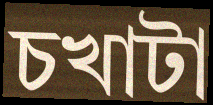
চখাটা